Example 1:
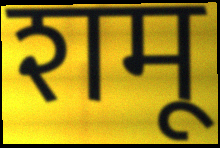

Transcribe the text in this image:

शमू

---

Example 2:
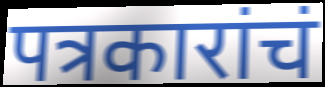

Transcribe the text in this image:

पत्रकारांचं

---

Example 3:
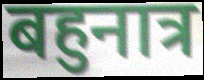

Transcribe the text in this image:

बहुनात्र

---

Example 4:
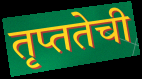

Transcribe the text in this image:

तृप्ततेची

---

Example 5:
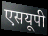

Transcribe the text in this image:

एसयूपी